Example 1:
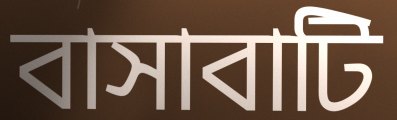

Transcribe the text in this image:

বাসাবাটি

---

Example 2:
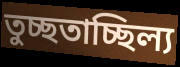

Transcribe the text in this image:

তুচ্ছতাচ্ছিল্য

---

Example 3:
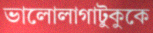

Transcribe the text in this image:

ভালোলাগাটুকুকে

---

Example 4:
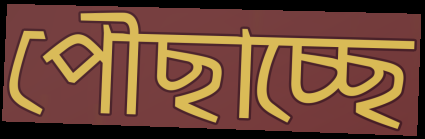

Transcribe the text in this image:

পৌছাচ্ছে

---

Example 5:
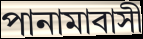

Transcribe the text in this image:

পানামাবাসী